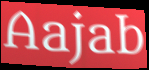
Aajab